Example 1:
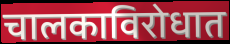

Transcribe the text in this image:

चालकाविरोधात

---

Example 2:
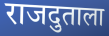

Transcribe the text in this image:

राजदुताला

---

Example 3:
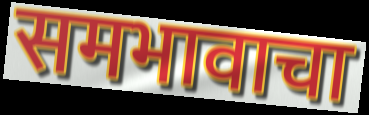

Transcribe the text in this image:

समभावाचा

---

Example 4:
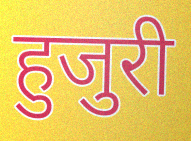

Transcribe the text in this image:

हुजुरी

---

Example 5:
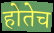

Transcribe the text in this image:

होतेच